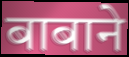
बाबाने